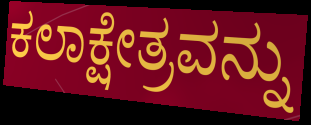
ಕಲಾಕ್ಷೇತ್ರವನ್ನು